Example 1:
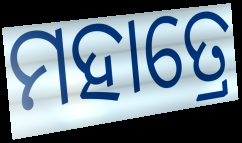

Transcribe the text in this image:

ମହାତ୍ରେ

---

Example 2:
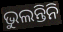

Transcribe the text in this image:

ଭୁଲନ୍ତିନି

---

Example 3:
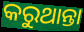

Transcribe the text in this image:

କରୁଥାନ୍ତା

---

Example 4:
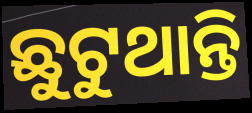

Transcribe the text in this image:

ଛୁଟୁଥାନ୍ତି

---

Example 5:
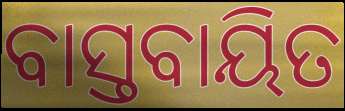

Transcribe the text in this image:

ବାସ୍ତବାୟିତ